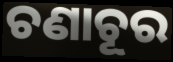
ଚଣାଚୂର